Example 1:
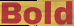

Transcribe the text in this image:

Bold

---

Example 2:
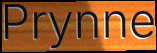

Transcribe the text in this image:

Prynne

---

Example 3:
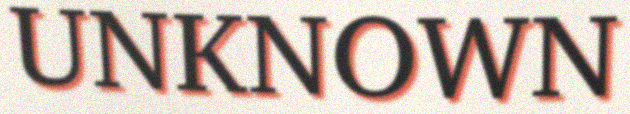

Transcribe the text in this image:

UNKNOWN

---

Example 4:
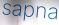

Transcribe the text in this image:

sapna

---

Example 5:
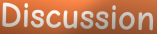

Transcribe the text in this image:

Discussion